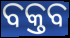
ବକ୍ତବ